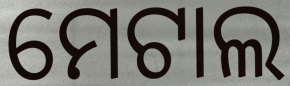
ମେଟାଲ